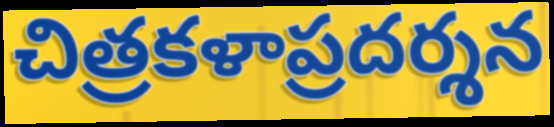
చిత్రకళాప్రదర్శన